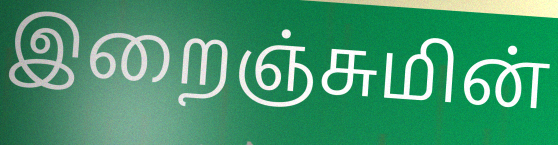
இறைஞ்சுமின்